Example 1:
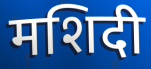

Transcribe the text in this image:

मशिदी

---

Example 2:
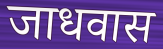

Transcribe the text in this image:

जाधवास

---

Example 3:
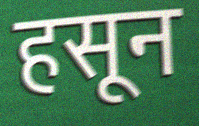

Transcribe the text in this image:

हसून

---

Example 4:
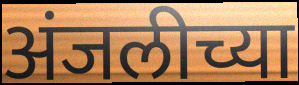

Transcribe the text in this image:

अंजलीच्या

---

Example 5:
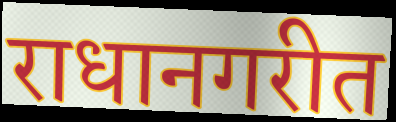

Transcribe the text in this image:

राधानगरीत